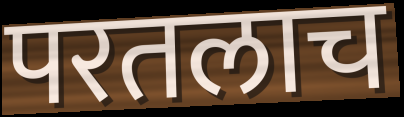
परतलाच